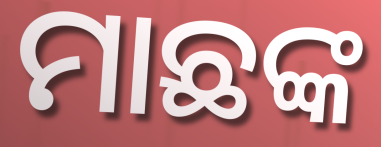
ମାଛଙ୍କ